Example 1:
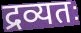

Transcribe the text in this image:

द्रव्यतः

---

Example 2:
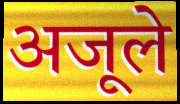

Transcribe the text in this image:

अजूले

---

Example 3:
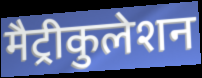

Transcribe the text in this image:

मैट्रीकुलेशन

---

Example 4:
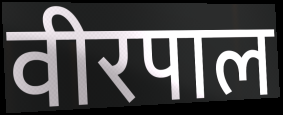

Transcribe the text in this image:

वीरपाल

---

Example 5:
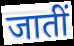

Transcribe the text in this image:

जातीं